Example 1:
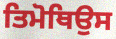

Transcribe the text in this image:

ਤਿਮੋਥਿਉਸ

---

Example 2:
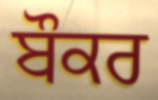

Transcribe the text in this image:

ਬੌਕਰ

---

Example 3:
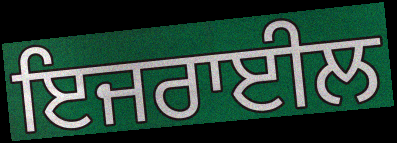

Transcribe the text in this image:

ਇਜਰਾਈਲ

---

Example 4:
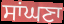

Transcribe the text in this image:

ਸਾਂਘਣਾ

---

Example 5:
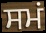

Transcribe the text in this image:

ਸਮਂ